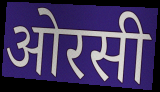
ओरसी